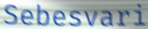
Sebesvari